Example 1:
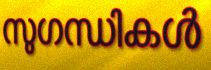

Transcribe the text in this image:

സുഗന്ധികൾ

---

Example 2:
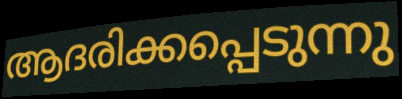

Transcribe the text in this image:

ആദരിക്കപ്പെടുന്നു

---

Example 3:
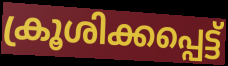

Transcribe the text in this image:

ക്രൂശിക്കപ്പെട്ട്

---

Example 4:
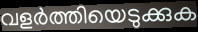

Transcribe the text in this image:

വളർത്തിയെടുക്കുക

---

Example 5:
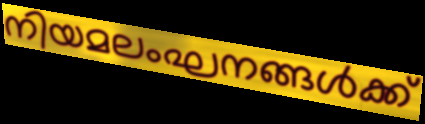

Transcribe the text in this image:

നിയമലംഘനങ്ങൾക്ക്